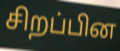
சிறப்பின